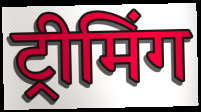
ट्रीमिंग